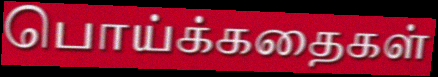
பொய்க்கதைகள்